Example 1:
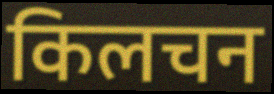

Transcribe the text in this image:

किलचन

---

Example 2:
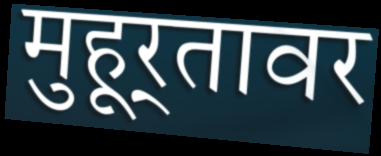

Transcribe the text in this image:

मुहूर्तावर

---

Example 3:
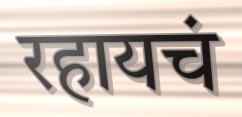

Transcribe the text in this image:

रहायचं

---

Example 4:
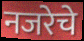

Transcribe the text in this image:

नजरेचे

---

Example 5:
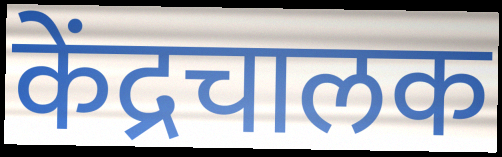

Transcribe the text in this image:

केंद्रचालक